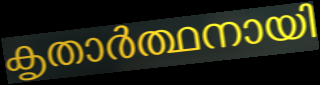
കൃതാർത്ഥനായി